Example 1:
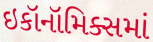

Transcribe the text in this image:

ઇકૉનૉમિક્સમાં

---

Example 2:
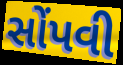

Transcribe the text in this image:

સોંપવી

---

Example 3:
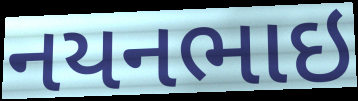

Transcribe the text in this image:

નયનભાઇ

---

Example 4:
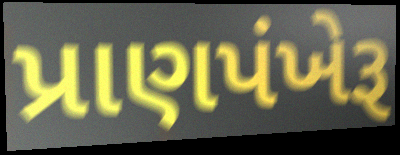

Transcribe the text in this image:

પ્રાણપંખેરૂ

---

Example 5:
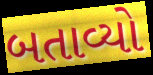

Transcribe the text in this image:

બતાવ્યો